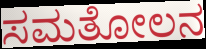
ಸಮತೋಲನ